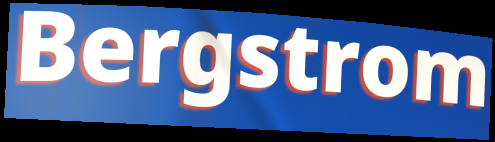
Bergstrom